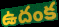
ఉదంక